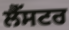
ਲੈੱਸਟਰ